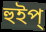
হুইপ্